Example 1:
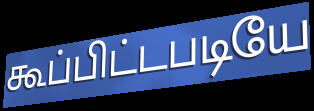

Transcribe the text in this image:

கூப்பிட்டபடியே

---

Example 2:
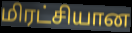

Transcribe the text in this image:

மிரட்சியான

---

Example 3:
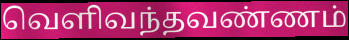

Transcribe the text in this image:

வெளிவந்தவண்ணம்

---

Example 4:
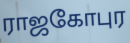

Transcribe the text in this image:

ராஜகோபுர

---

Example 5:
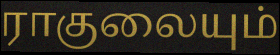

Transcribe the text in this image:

ராகுலையும்